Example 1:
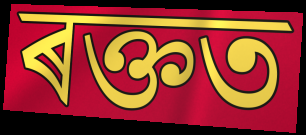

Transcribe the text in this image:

ৰক্তত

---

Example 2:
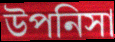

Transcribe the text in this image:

উপনিসা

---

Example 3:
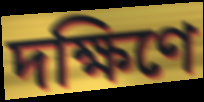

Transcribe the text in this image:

দক্ষিণে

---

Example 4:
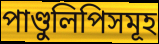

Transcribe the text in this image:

পাণ্ডুলিপিসমূহ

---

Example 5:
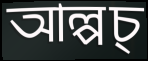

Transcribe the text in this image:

আল্পচ্